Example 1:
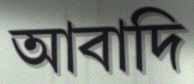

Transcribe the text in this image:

আবাদি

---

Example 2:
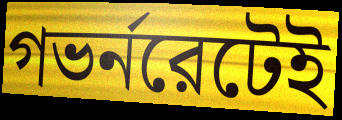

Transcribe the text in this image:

গভর্নরেটেই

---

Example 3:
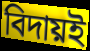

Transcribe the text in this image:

বিদায়ই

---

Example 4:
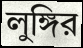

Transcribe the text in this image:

লুঙ্গির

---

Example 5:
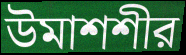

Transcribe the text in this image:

উমাশশীর